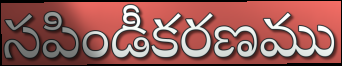
సపిండీకరణము